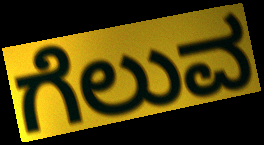
ಗೆಲುವ